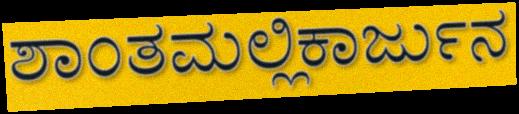
ಶಾಂತಮಲ್ಲಿಕಾರ್ಜುನ